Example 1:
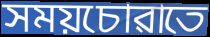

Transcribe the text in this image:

সময়চোৱাতে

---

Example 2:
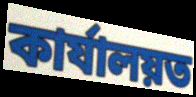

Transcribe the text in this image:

কাৰ্যালয়ত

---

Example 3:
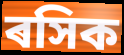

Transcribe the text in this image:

ৰসিক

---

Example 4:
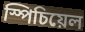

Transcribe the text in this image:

স্পিচিয়েল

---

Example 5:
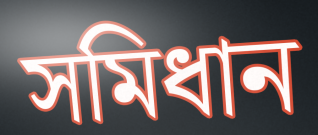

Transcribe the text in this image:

সমিধান